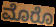
ಮೊರೊ